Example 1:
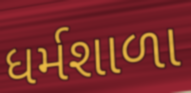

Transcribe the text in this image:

ધર્મશાળા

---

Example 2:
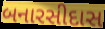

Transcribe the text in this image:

બનારસીદાસ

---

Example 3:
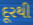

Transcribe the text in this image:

દૂરથી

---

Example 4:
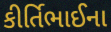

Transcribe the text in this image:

કીર્તિભાઈના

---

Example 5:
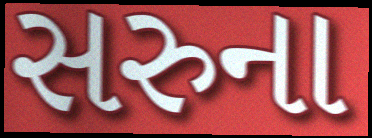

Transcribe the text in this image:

સરુના